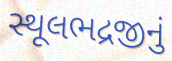
સ્થૂલભદ્રજીનું